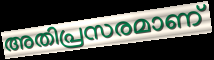
അതിപ്രസരമാണ്